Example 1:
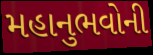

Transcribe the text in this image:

મહાનુભવોની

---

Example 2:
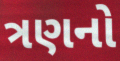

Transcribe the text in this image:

ત્રણનો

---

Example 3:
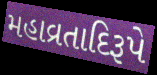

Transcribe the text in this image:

મહાવ્રતાદિરૂપે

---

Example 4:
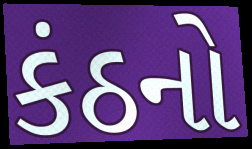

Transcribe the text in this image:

કંઠનો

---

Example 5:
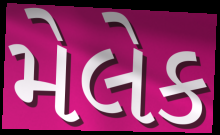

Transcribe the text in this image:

મેલેક